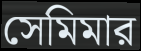
সেমিমার